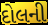
દોલની